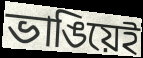
ভাঙিয়েই